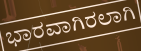
ಭಾರವಾಗಿರಲಾಗಿ